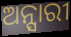
ଅନ୍ସାରୀ